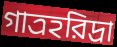
গাত্রহরিদ্রা